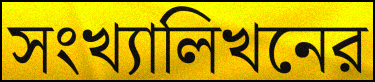
সংখ্যালিখনের